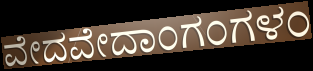
ವೇದವೇದಾಂಗಂಗಳಂ